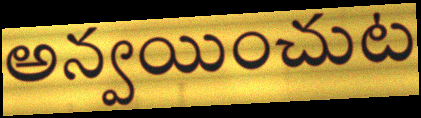
అన్వయించుట